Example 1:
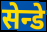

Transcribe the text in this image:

सेन्डे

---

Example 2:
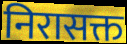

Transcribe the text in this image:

निरासक्त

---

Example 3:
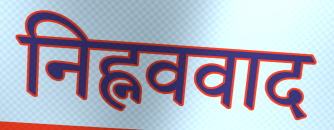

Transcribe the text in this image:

निह्नववाद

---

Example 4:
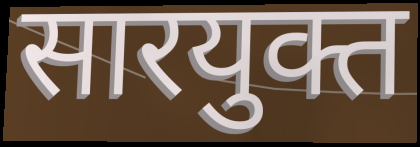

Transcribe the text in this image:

सारयुक्त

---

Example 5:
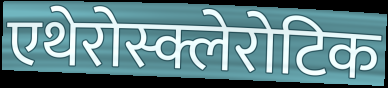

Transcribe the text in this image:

एथेरोस्क्लेरोटिक